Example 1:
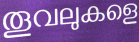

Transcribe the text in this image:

തൂവലുകളെ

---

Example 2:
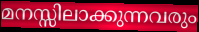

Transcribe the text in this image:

മനസ്സിലാക്കുന്നവരും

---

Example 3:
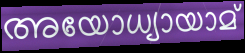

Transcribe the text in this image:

അയോധ്യായാമ്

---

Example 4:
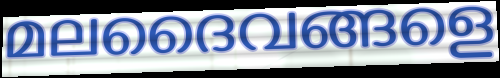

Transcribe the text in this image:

മലദൈവങ്ങളെ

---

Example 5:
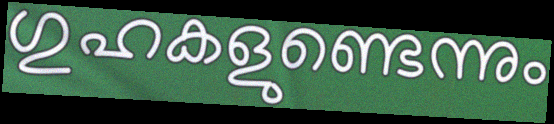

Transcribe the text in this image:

ഗുഹകളുണ്ടെന്നും